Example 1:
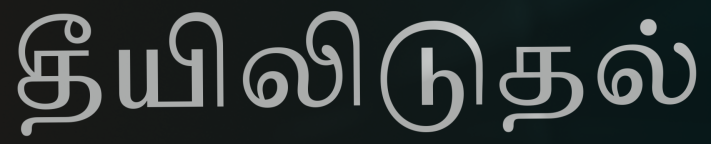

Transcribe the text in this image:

தீயிலிடுதல்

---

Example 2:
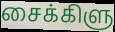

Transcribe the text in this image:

சைக்கிளு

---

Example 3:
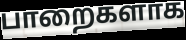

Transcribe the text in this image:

பாறைகளாக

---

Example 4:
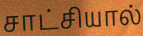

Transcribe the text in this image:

சாட்சியால்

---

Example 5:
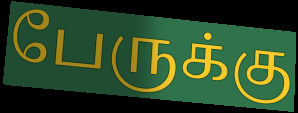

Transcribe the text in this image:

பேருக்கு